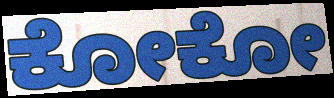
ಕೋಕೋ